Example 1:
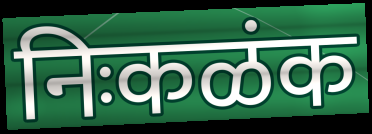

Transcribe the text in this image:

निःकळंक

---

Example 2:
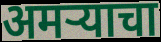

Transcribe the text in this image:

अमऱ्याचा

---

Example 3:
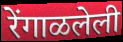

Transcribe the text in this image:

रेंगाळलेली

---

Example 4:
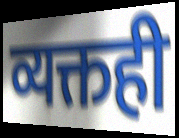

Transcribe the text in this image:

व्यक्तही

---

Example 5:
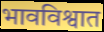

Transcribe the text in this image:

भावविश्वात